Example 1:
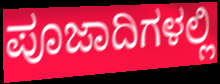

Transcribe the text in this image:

ಪೂಜಾದಿಗಳಲ್ಲಿ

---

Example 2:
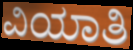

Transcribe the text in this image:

ವಿಯಾತಿ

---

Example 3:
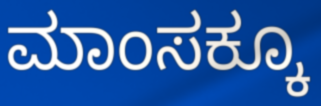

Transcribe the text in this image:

ಮಾಂಸಕ್ಕೂ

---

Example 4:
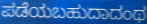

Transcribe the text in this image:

ಪಡೆಯಬಹುದಾದಂಥ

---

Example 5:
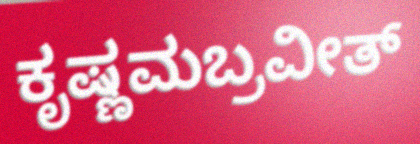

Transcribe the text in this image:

ಕೃಷ್ಣಮಬ್ರವೀತ್